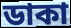
ডাকা